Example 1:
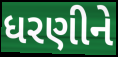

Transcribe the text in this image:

ધરણીને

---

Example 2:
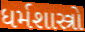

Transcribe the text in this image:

ધર્મશાસ્ત્રો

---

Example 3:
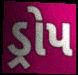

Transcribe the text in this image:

ડ્રોપ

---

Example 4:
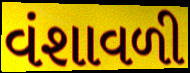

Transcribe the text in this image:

વંશાવળી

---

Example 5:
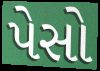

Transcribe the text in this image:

પેસો